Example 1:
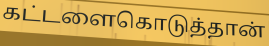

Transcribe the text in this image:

கட்டளைகொடுத்தான்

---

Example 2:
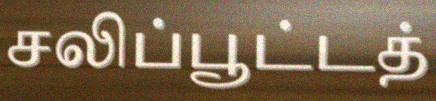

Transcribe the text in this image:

சலிப்பூட்டத்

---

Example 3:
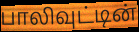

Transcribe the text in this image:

பாலிவுட்டின்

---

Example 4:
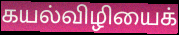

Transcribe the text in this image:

கயல்விழியைக்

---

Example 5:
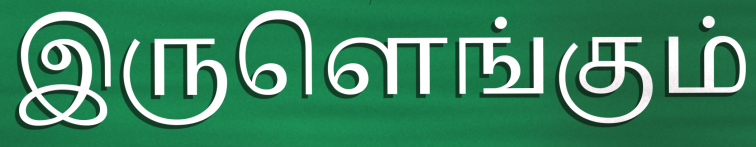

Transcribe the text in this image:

இருளெங்கும்